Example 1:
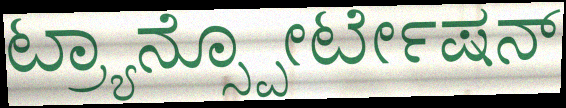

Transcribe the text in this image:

ಟ್ರ್ಯಾನ್ಸ್ಪೋರ್ಟೇಷನ್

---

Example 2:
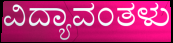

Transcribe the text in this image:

ವಿದ್ಯಾವಂತಳು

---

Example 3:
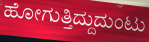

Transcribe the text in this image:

ಹೋಗುತ್ತಿದ್ದುದುಂಟು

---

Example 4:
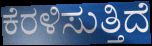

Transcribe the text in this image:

ಕೆರಳಿಸುತ್ತಿದೆ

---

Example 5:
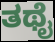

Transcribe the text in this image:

ತಥೈ